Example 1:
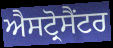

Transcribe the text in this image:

ਐਸਟ੍ਰੋਸੈਂਟਰ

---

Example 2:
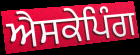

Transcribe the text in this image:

ਐਸਕੇਪਿੰਗ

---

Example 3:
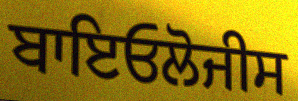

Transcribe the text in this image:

ਬਾਇਓਲੋਜੀਸ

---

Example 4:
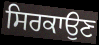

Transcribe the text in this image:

ਸਿਰਕਾਉਣ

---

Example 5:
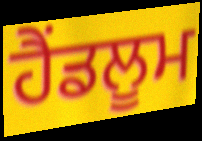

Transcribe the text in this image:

ਹੈਂਡਲੂਮ